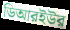
ডিআরইউর